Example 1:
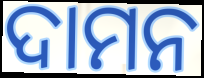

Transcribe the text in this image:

ଦାମନ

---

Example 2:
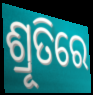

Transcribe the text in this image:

ଶ୍ରୂତିରେ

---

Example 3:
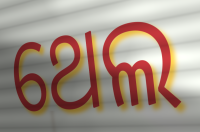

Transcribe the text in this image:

ଥେଲ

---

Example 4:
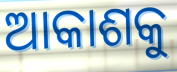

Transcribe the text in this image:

ଆକାଶକୁ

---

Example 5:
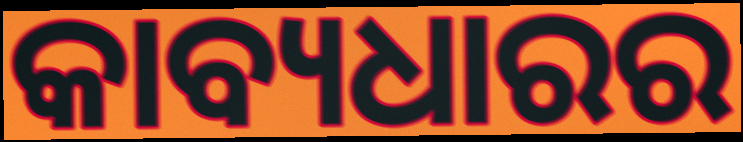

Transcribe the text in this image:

କାବ୍ୟଧାରର